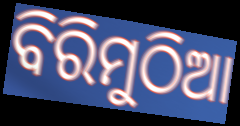
ବିରିମୁଠିଆ